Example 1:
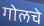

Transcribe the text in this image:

गोलचे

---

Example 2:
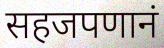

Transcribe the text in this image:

सहजपणानं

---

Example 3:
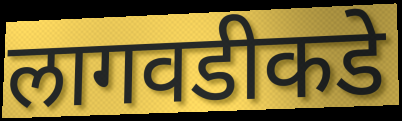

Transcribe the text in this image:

लागवडीकडे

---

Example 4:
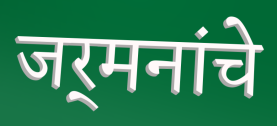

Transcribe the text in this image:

जर्मनांचे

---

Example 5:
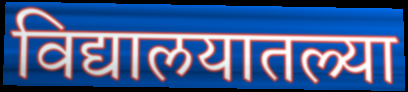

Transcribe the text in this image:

विद्यालयातल्या